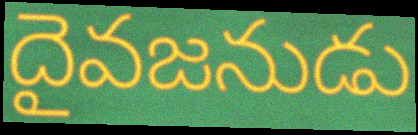
దైవజనుడు